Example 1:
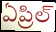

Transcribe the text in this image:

ఏప్రిల్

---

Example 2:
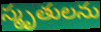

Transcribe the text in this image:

స్మృతులను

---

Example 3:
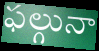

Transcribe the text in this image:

ఫల్గునా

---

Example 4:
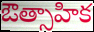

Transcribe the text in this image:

ఔత్సాహిక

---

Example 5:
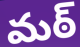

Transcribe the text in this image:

మఠ్